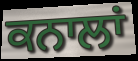
ਕਨਾਲਾਂ